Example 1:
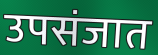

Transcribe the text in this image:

उपसंजात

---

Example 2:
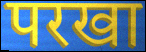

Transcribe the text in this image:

परखा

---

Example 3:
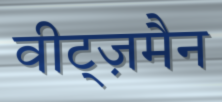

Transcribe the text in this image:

वीट्ज़मैन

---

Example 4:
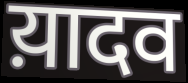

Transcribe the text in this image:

य़ादव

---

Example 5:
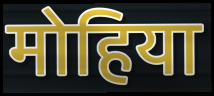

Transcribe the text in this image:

मोहिया